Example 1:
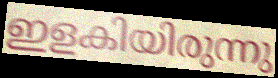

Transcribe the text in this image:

ഇളകിയിരുന്നു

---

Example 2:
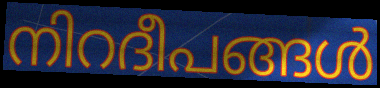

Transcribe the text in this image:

നിറദീപങ്ങൾ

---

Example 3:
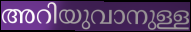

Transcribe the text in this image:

അറിയുവാനുള്ള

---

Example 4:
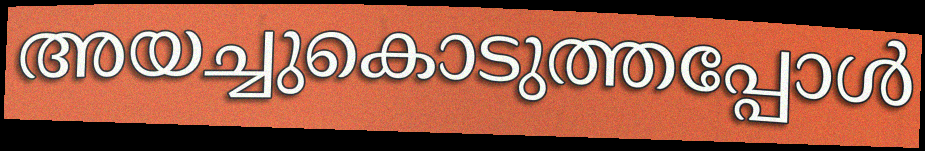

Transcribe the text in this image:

അയച്ചുകൊടുത്തപ്പോൾ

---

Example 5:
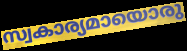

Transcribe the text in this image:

സ്വകാര്യമായൊരു